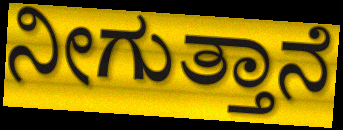
ನೀಗುತ್ತಾನೆ